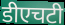
डीएचटी